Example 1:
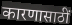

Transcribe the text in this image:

कारणासाठीं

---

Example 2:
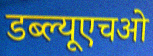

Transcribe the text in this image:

डब्ल्यूएचओ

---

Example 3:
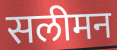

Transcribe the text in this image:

सलीमन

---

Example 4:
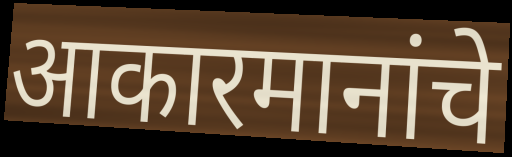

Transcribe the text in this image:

आकारमानांचे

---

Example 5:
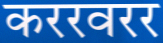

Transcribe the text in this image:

कररवरर